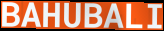
BAHUBALI